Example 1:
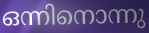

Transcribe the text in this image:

ഒന്നിനൊന്നു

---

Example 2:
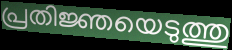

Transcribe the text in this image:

പ്രതിജ്ഞയെടുത്തു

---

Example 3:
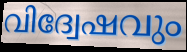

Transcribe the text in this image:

വിദ്വേഷവും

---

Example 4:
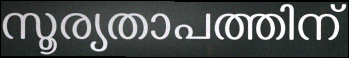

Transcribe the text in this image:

സൂര്യതാപത്തിന്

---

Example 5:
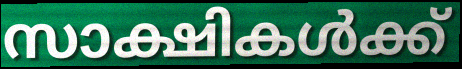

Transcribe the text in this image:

സാക്ഷികൾക്ക്